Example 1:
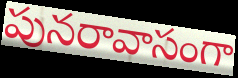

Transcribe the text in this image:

పునరావాసంగా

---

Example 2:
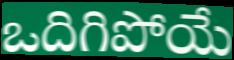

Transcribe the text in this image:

ఒదిగిపోయే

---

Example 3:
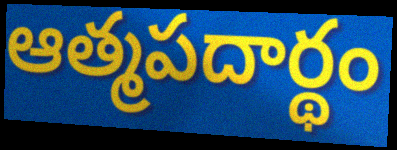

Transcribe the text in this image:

ఆత్మపదార్థం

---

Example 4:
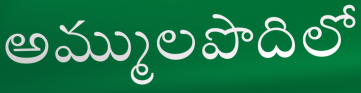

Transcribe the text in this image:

అమ్ములపొదిలో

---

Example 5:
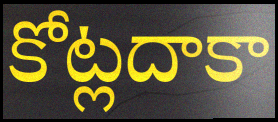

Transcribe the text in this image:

కోట్లదాకా